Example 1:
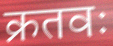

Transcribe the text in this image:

क्रतवः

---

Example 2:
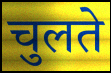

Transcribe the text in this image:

चुलते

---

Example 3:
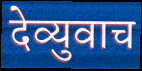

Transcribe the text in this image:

देव्युवाच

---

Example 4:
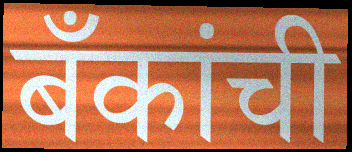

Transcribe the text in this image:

बँकांची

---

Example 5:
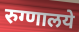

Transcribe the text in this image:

रुग्णालये